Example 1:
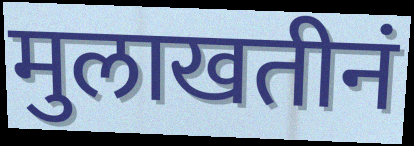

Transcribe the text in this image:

मुलाखतीनं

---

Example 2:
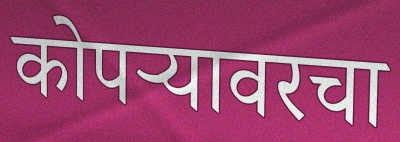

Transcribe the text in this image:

कोपऱ्यावरचा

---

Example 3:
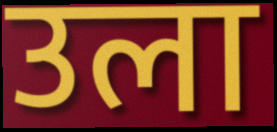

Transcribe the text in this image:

उला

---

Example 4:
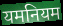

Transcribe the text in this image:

यमनियम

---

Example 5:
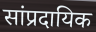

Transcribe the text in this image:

सांप्रदायिक